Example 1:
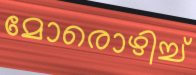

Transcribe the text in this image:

മോരൊഴിച്ച്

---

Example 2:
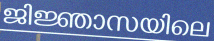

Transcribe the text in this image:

ജിജ്ഞാസയിലെ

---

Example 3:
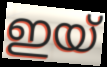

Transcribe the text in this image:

ഇയ്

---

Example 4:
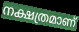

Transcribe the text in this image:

നക്ഷത്രമാണ്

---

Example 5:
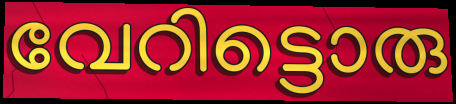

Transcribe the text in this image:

വേറിട്ടൊരു